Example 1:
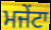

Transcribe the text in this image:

ਮਜੇਂਟਾ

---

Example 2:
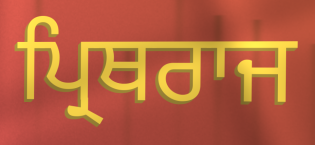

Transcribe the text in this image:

ਪ੍ਰਿਥਰਾਜ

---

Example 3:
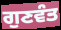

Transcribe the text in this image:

ਗੁਣਵੰਤ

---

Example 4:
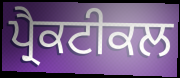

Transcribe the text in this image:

ਪ੍ਰੈਕਟੀਕਲ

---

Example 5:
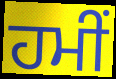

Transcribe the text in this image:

ਹਮੀਂ